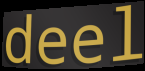
deel